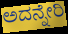
ಅದನ್ನೇರಿ